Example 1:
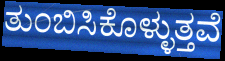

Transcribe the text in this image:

ತುಂಬಿಸಿಕೊಳ್ಳುತ್ತವೆ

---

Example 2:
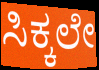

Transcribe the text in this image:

ಸಿಕ್ಕಲೇ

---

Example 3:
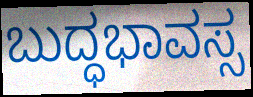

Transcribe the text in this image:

ಬುದ್ಧಭಾವಸ್ಸ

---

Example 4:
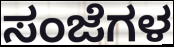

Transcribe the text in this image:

ಸಂಜೆಗಳ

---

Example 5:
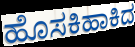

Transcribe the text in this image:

ಹೊಸಕಿಹಾಕಿದ